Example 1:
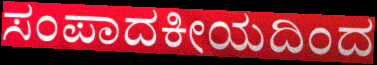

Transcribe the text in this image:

ಸಂಪಾದಕೀಯದಿಂದ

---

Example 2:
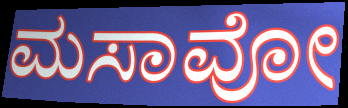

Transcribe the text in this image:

ಮಸಾವೋ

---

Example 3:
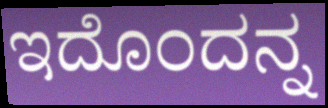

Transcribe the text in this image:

ಇದೊಂದನ್ನ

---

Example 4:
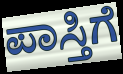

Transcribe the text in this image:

ಪಾಸ್ತಿಗೆ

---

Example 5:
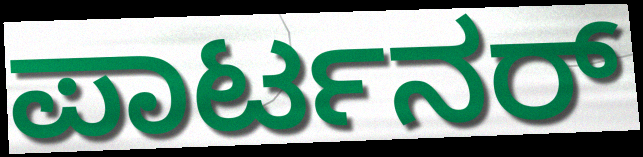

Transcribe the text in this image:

ಪಾರ್ಟನರ್